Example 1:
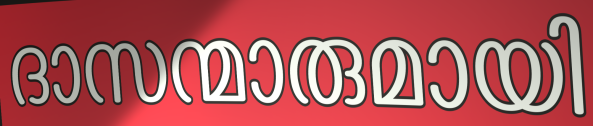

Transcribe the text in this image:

ദാസന്മാരുമായി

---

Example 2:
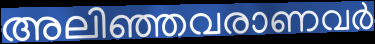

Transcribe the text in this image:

അലിഞ്ഞവരാണവർ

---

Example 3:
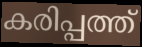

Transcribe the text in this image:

കരിപ്പത്ത്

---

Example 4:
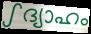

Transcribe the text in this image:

ഽദ്യാഹം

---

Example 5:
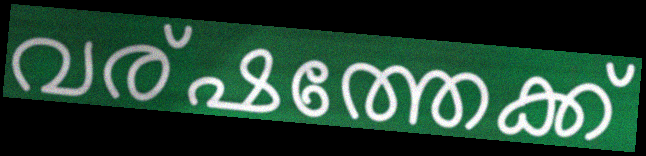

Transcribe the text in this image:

വര്ഷത്തേക്ക്